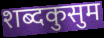
शब्दकुसुम